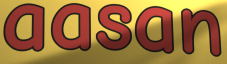
aasan